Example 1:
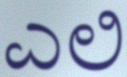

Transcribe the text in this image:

ಎಲಿ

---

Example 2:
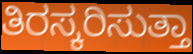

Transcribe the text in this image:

ತಿರಸ್ಕರಿಸುತ್ತಾ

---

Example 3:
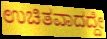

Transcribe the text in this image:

ಉಚಿತವಾದದ್ದೇ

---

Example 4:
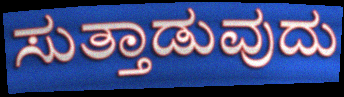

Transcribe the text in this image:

ಸುತ್ತಾಡುವುದು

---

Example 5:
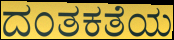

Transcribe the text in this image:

ದಂತಕತೆಯ